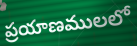
ప్రయాణములలో